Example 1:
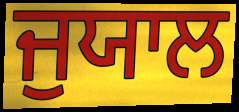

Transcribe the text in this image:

ਜੁਯਾਲ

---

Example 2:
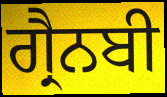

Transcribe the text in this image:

ਗ੍ਰੈਨਬੀ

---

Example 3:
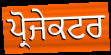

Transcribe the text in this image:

ਪ੍ਰੋਜੇਕਟਰ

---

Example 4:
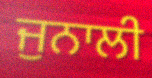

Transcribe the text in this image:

ਜੁਨਾਲੀ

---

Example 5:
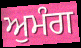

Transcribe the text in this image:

ਅੁਮੰਗ